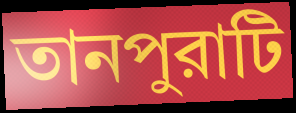
তানপুরাটি